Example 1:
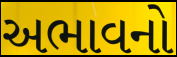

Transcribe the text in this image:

અભાવનો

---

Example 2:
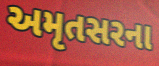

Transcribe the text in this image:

અમૃતસરના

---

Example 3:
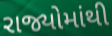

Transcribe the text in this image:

રાજ્યોમાંથી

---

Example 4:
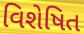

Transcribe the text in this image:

વિશેષિત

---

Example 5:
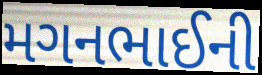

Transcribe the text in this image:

મગનભાઈની